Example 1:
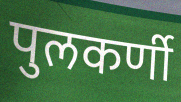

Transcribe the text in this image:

पुलकर्णी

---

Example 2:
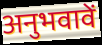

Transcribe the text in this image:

अनुभवावें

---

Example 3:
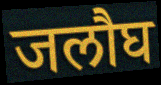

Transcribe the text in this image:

जलौघ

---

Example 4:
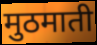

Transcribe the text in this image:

मुठमाती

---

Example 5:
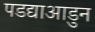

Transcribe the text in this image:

पडद्याआडुन